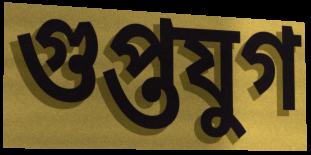
গুপ্তযুগ